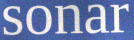
sonar